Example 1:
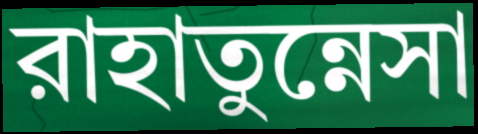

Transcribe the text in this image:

রাহাতুন্নেসা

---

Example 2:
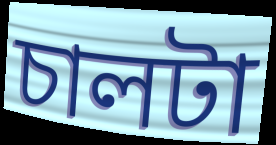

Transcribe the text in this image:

চালটা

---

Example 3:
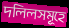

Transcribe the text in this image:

দলিলসমূহে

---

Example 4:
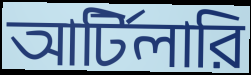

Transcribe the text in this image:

আর্টিলারি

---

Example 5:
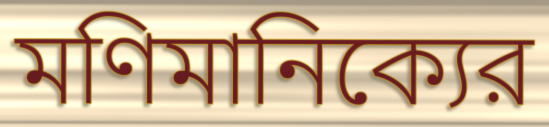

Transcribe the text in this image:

মণিমানিক্যের